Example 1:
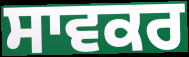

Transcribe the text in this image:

ਸਾਵਕਰ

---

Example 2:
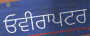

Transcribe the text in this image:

ਓਵੀਰਾਪਟਰ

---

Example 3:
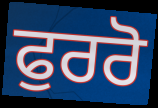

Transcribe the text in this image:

ਫੁਰਰੋ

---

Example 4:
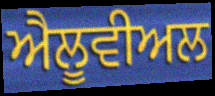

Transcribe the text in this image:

ਐਲੂਵੀਅਲ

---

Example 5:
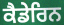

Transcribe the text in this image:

ਕੈਡੇਰਿਨ